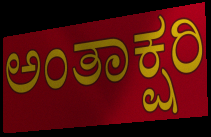
ಅಂತಾಕ್ಷರಿ